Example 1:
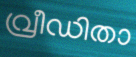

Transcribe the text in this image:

വ്രീഡിതാ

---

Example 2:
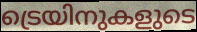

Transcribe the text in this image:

ട്രെയിനുകളുടെ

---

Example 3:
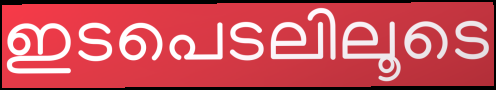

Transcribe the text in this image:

ഇടപെടലിലൂടെ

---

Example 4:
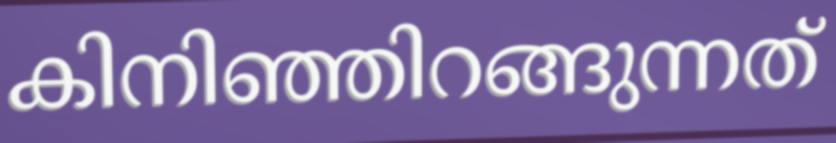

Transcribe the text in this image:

കിനിഞ്ഞിറങ്ങുന്നത്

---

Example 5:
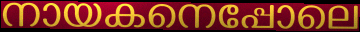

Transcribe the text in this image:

നായകനെപ്പോലെ